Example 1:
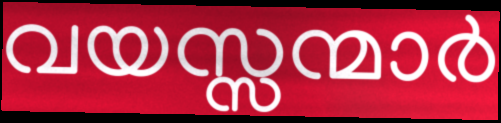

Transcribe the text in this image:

വയസ്സന്മാർ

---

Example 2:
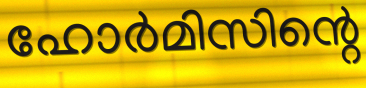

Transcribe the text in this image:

ഹോർമിസിന്റെ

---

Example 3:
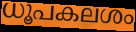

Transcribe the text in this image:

ധൂപകലശം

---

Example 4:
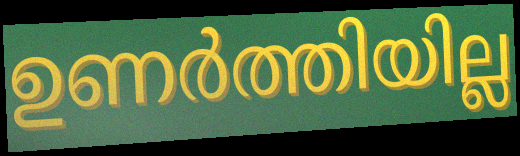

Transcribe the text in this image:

ഉണർത്തിയില്ല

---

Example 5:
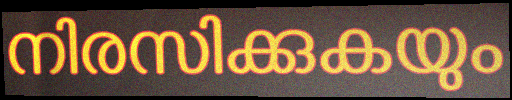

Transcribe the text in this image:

നിരസിക്കുകയും